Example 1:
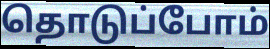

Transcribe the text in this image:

தொடுப்போம்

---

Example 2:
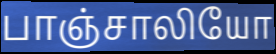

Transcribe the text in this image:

பாஞ்சாலியோ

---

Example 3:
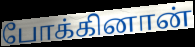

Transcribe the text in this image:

போக்கினான்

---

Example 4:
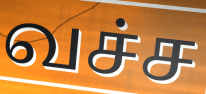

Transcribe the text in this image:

வச்ச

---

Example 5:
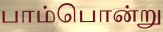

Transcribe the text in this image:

பாம்பொன்று